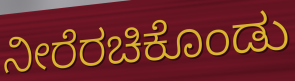
ನೀರೆರಚಿಕೊಂಡು